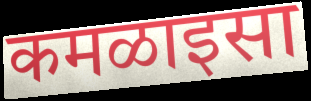
कमळाइसा